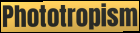
Phototropism